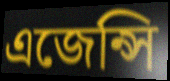
এজেন্সি